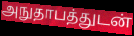
அநுதாபத்துடன்